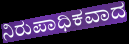
ನಿರುಪಾಧಿಕವಾದ